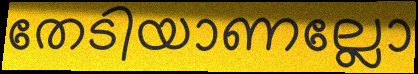
തേടിയാണല്ലോ